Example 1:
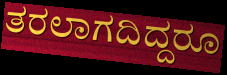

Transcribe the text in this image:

ತರಲಾಗದಿದ್ದರೂ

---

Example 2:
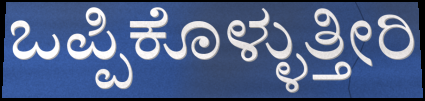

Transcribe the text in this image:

ಒಪ್ಪಿಕೊಳ್ಳುತ್ತೀರಿ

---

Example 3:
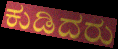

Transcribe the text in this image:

ಕುಡಿದರು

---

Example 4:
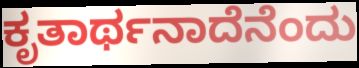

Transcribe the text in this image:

ಕೃತಾರ್ಥನಾದೆನೆಂದು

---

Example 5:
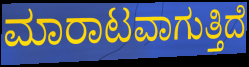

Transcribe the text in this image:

ಮಾರಾಟವಾಗುತ್ತಿದೆ